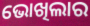
ଭୋଖିଲାର